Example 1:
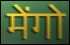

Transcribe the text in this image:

मेंगो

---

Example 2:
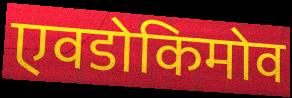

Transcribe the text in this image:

एवडोकिमोव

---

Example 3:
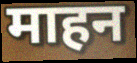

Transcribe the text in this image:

माहन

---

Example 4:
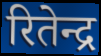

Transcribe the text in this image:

रितेन्द्र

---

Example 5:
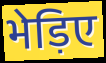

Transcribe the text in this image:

भेड़िए